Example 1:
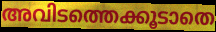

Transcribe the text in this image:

അവിടത്തെക്കൂടാതെ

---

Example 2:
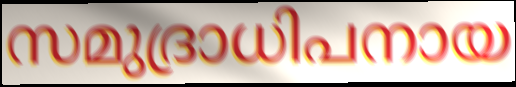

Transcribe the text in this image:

സമുദ്രാധിപനായ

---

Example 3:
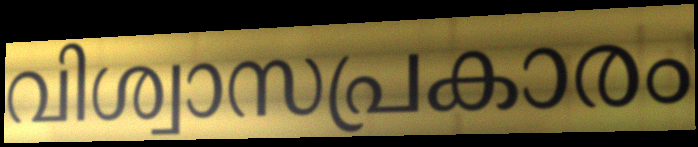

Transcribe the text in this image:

വിശ്വാസപ്രകാരം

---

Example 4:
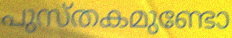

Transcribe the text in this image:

പുസ്തകമുണ്ടോ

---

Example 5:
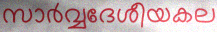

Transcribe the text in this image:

സാർവ്വദേശീയകല